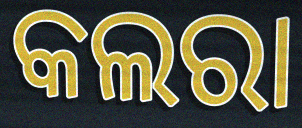
କଲରା